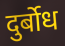
दुर्बोध